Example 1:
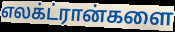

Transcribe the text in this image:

எலக்ட்ரான்களை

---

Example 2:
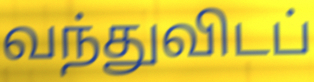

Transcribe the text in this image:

வந்துவிடப்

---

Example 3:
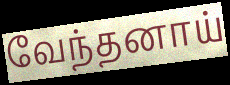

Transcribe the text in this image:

வேந்தனாய்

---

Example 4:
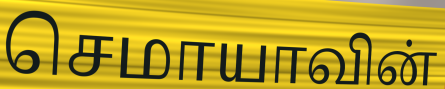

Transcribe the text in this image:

செமாயாவின்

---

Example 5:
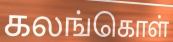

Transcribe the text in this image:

கலங்கொள்